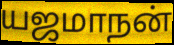
யஜமாநன்